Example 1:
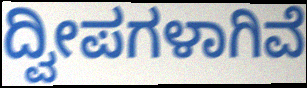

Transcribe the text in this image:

ದ್ವೀಪಗಳಾಗಿವೆ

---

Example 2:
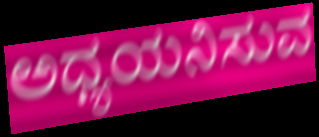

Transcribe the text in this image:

ಅಧ್ಯಯನಿಸುವ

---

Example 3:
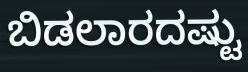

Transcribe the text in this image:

ಬಿಡಲಾರದಷ್ಟು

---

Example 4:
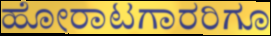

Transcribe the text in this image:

ಹೋರಾಟಗಾರರಿಗೂ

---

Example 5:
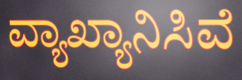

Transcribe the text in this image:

ವ್ಯಾಖ್ಯಾನಿಸಿವೆ